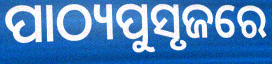
ପାଠ୍ୟପୁସୃଜରେ